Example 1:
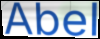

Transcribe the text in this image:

Abel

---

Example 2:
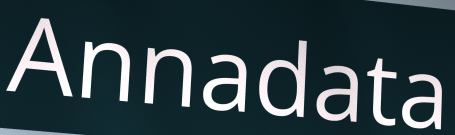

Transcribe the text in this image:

Annadata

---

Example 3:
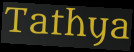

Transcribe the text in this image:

Tathya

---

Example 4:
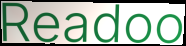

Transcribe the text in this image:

Readoo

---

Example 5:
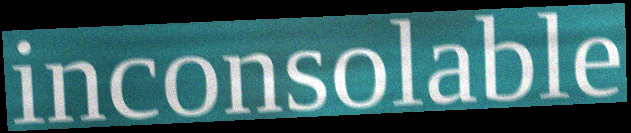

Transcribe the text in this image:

inconsolable